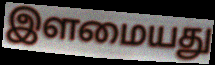
இளமையது